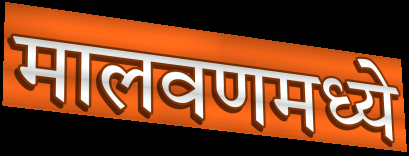
मालवणमध्ये